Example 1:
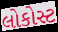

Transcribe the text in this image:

લોકોસ્ટ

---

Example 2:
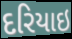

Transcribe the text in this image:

દરિયાઇ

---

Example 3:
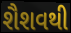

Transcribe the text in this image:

શૈશવથી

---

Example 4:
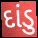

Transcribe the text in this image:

દાંડુ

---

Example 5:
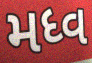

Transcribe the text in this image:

મધ્વ